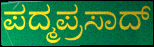
ಪದ್ಮಪ್ರಸಾದ್